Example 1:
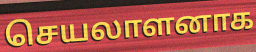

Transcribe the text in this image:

செயலாளனாக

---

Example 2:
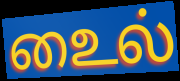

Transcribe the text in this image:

உைல்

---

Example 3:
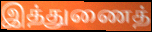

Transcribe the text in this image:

இத்துணைத்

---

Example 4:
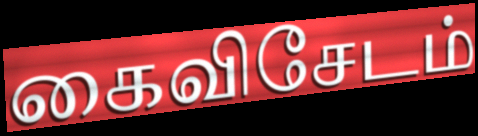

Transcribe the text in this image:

கைவிசேடம்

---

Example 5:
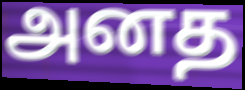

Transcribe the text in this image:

அனத